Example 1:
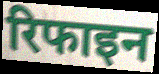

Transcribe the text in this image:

रिफाइन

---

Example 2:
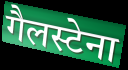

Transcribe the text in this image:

गैलस्टेना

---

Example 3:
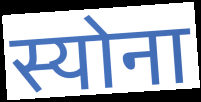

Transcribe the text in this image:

स्योना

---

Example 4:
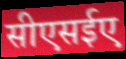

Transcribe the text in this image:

सीएसईए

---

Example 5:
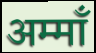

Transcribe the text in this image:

अम्माँ